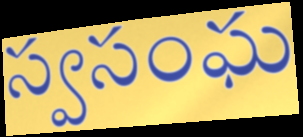
స్వసంఘ